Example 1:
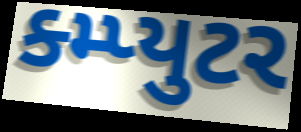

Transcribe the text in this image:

ક્મ્પ્યુટર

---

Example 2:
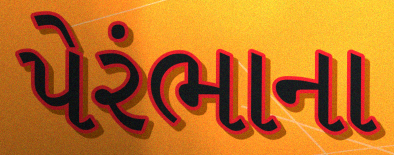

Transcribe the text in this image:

પેરંભાના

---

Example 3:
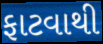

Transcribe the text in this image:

ફાટવાથી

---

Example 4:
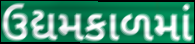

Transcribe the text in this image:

ઉદ્યમકાળમાં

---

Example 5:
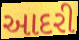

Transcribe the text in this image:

આદરી